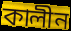
কালীন